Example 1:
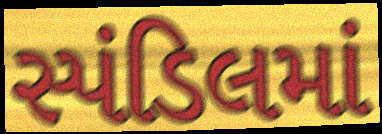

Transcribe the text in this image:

સ્પંડિલમાં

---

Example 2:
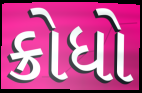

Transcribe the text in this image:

ક્રોધો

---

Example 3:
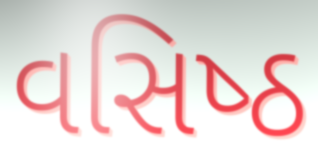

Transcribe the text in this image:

વસિષ્‍ઠ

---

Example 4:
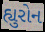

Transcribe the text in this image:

હ્યુરોન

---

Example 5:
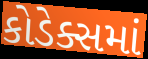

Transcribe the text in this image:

કોડેક્સમાં